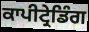
ਕਾਪੀਟ੍ਰੇਡਿੰਗ